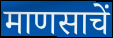
माणसाचें